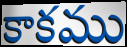
కాకము